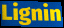
Lignin